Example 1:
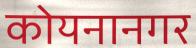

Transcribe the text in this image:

कोयनानगर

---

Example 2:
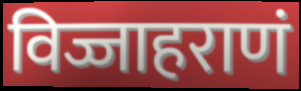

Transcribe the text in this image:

विज्जाहराणं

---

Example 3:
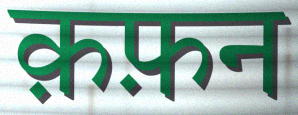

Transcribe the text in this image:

क़फ़न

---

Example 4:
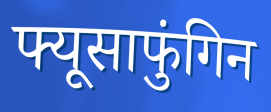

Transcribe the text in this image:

फ्यूसाफुंगिन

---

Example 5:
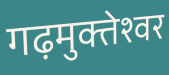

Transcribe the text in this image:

गढ़मुक्तेश्वर